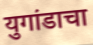
युगांडाचा